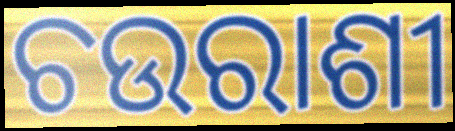
ଚଉରାଶୀ